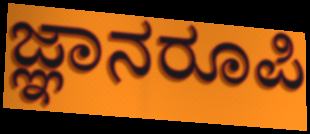
ಜ್ಞಾನರೂಪಿ